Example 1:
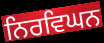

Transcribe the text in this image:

ਨਿਰਵਿਘਨ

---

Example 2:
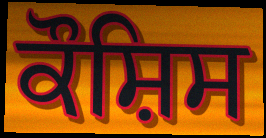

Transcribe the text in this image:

ਕੌਸ਼ਿਸ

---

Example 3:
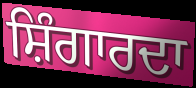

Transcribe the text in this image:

ਸ਼ਿੰਗਾਰਦਾ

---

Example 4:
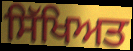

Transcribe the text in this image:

ਸਿੱਖਿਅਤ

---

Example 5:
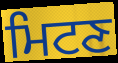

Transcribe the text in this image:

ਮਿਟਣ